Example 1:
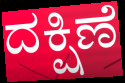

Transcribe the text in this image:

ದಕ್ಷಿಣೆ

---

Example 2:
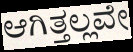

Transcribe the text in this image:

ಆಗಿತ್ತಲ್ಲವೇ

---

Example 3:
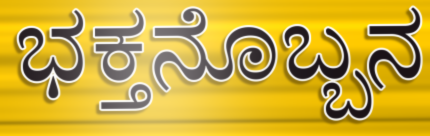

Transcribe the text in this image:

ಭಕ್ತನೊಬ್ಬನ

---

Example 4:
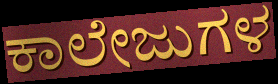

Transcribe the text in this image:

ಕಾಲೇಜುಗಳ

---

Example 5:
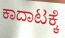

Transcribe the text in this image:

ಕಾದಾಟಕ್ಕೆ